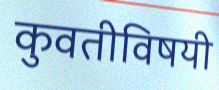
कुवतीविषयी